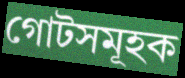
গোটসমূহক